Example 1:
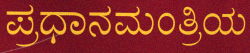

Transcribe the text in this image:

ಪ್ರಧಾನಮಂತ್ರಿಯ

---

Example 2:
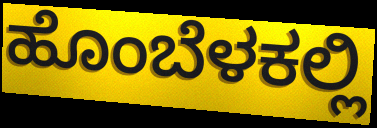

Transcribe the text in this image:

ಹೊಂಬೆಳಕಲ್ಲಿ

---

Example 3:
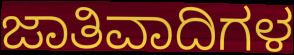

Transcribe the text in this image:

ಜಾತಿವಾದಿಗಳ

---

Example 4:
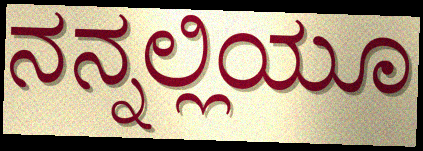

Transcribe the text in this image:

ನನ್ನಲ್ಲಿಯೂ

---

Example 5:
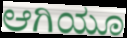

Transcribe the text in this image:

ಆಗಿಯೂ